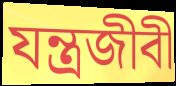
যন্ত্রজীবী